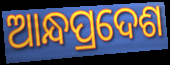
ଆନ୍ଧପ୍ରଦେଶ